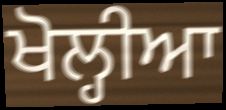
ਖੋਲ੍ਹੀਆ